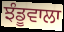
ਝੰਡੂਵਾਲਾ